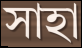
সাহা